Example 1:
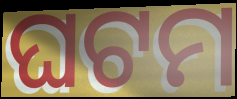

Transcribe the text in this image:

ଘଟମ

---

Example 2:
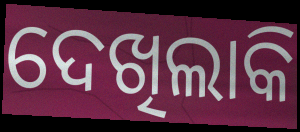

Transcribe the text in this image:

ଦେଖିଲାକି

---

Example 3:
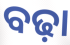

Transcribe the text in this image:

ବଢ଼ା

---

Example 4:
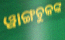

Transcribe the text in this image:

ୱାଙ୍ଗଚୁକଙ୍କ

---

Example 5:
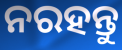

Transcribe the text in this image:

ନରହନ୍ତୁ